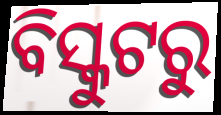
ବିସ୍କୁଟରୁ